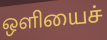
ஒளியைச்